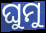
ଘୁମୁ